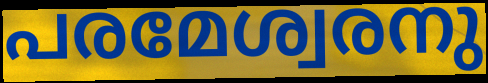
പരമേശ്വരനു